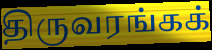
திருவரங்கக்